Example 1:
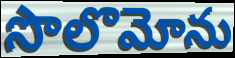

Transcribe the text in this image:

సొలొమోను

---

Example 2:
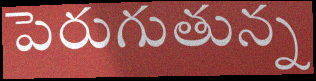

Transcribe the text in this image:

పెరుగుతున్న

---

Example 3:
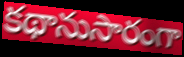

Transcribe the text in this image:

కథానుసారంగా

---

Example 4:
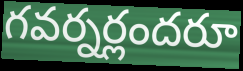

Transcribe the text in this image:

గవర్నర్లందరూ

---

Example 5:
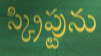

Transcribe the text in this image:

స్క్రిప్టును